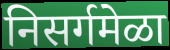
निसर्गमेळा